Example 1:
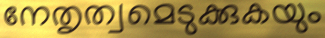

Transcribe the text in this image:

നേതൃത്വമെടുക്കുകയും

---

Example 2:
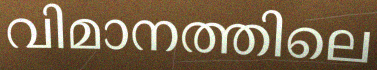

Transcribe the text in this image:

വിമാനത്തിലെ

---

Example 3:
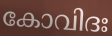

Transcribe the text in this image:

കോവിദഃ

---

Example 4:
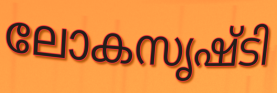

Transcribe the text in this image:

ലോകസൃഷ്ടി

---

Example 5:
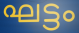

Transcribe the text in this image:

ഘട്ടം